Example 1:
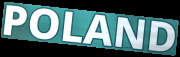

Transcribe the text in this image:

POLAND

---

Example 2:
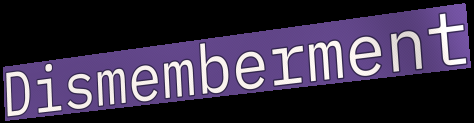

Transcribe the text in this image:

Dismemberment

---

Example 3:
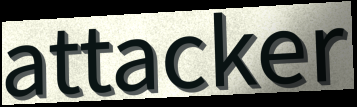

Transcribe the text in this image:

attacker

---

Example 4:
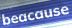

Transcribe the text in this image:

beacause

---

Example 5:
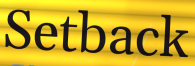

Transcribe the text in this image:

Setback